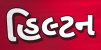
હિલ્ટન